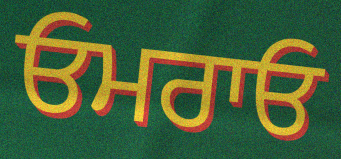
ਓਮਰਾਓ